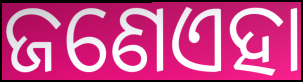
ଜଣେଏହା